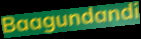
Baagundandi